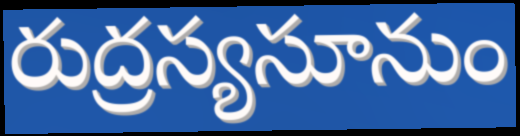
రుద్రస్యసూనుం